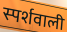
स्पर्शवाली